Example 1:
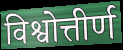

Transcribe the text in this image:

विश्वोत्तीर्ण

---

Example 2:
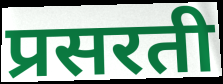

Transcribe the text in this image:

प्रसरती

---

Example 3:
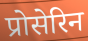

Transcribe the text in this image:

प्रोसेरिन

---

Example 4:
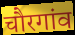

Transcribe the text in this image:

चौरगांव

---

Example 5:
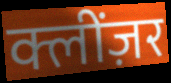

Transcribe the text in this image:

क्लींज़र